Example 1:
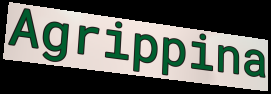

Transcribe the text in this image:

Agrippina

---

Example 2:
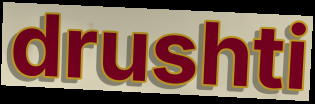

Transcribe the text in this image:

drushti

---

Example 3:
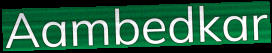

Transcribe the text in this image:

Aambedkar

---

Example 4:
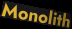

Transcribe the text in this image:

Monolith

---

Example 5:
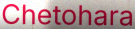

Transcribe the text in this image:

Chetohara